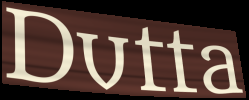
Dutta